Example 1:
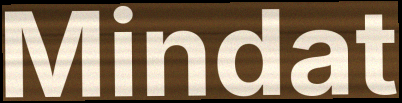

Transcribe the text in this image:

Mindat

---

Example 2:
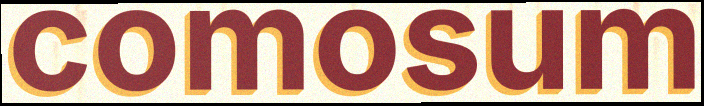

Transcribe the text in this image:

comosum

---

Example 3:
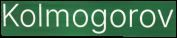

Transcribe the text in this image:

Kolmogorov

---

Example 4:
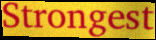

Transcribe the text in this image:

Strongest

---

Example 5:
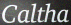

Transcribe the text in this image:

Caltha